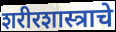
शरीरशास्त्राचे